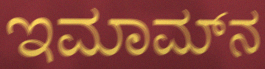
ಇಮಾಮ್‍ನ